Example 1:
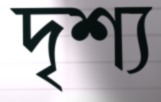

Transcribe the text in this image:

দৃশ্য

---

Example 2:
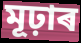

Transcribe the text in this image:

মূঢ়াৰ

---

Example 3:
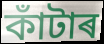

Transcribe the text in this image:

কাঁটাৰ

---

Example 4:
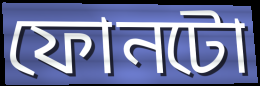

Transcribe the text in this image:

ফোনটো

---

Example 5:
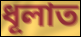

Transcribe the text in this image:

ধূলাত